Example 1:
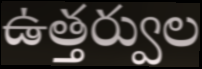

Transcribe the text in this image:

ఉత్తర్వుల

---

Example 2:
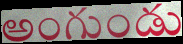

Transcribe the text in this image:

అంగుండు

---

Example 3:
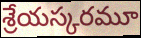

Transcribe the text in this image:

శ్రేయస్కరమూ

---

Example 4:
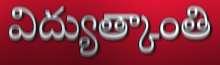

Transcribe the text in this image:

విద్యుత్కాంతి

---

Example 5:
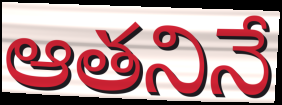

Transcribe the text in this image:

ఆతనినే